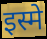
इस्मे